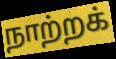
நாற்றக்